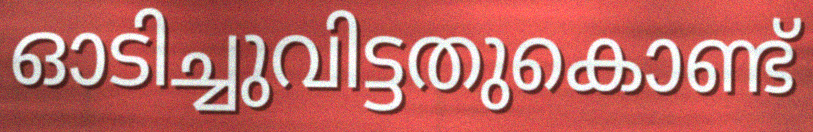
ഓടിച്ചുവിട്ടതുകൊണ്ട്